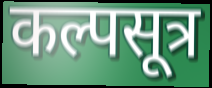
कल्पसूत्र